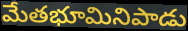
మేతభూమినిపాడు